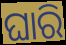
ଘାରି